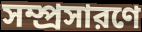
সম্প্রসারণে